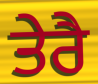
ਤੇਰੈ